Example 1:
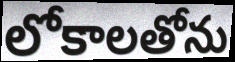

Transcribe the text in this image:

లోకాలతోను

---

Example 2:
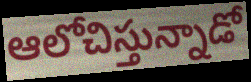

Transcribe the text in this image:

ఆలోచిస్తున్నాడో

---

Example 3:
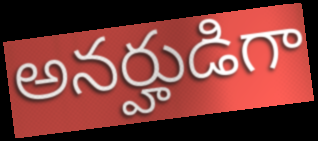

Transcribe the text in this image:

అనర్హుడిగా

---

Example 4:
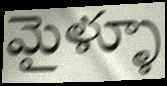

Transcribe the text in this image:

మైళ్ళూ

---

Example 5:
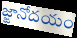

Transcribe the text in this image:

జ్ఙానోదయం